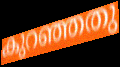
കുറഞ്ഞതു